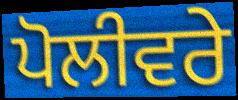
ਪੋਲੀਵਰੇ